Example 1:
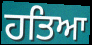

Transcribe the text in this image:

ਹਤਿਆ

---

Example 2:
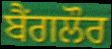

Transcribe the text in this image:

ਬੈਂਗਲੌਰ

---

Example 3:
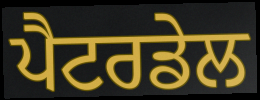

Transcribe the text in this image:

ਪੈਟਰਡੇਲ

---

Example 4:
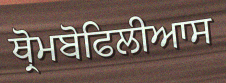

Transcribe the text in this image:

ਥ੍ਰੋਮਬੋਫਿਲੀਆਸ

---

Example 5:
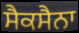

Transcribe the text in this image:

ਸੈਕਸੈਨਾ